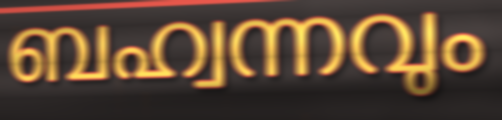
ബഹ്വന്നവും